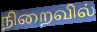
நிறைவில்